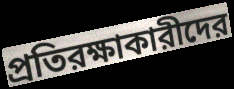
প্রতিরক্ষাকারীদের